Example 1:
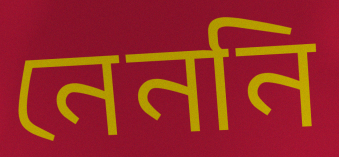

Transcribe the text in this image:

নেননি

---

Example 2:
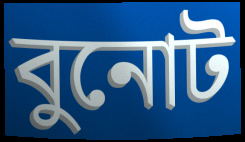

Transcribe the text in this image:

বুনোট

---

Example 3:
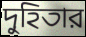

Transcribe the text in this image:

দুহিতার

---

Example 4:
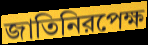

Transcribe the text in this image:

জাতিনিরপেক্ষ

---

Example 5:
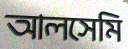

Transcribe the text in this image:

আলসেমি